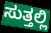
ಸುತ್ತಲ್ಲಿ